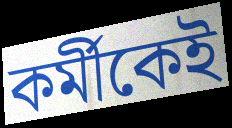
কর্মীকেই